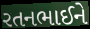
રતનભાઈને